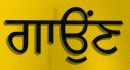
ਗਾਉਂਣ